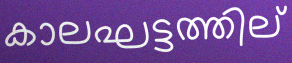
കാലഘട്ടത്തില്